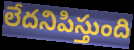
లేదనిపిస్తుంది